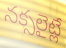
నక్సలైట్లే